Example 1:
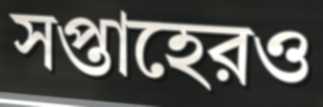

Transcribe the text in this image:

সপ্তাহেরও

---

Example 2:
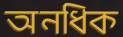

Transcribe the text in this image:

অনধিক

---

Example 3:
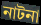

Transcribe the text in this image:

নাটনা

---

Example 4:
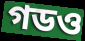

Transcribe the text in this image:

গডও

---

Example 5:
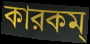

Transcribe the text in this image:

কারকম্